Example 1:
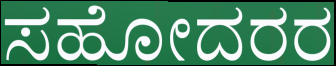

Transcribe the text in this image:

ಸಹೋದರರ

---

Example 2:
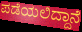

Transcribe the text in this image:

ಪಡೆಯಲಿದ್ದಾನೆ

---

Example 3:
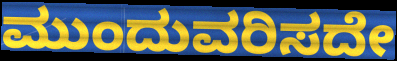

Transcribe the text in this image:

ಮುಂದುವರಿಸದೇ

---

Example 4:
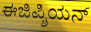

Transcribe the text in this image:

ಈಜಿಪ್ಶಿಯನ್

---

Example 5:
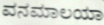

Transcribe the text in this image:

ವನಮಾಲಯಾ